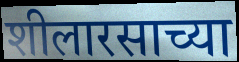
शीलारसाच्या